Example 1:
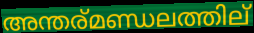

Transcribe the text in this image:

അന്തര്മണ്ഡലത്തില്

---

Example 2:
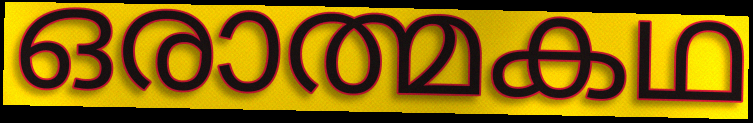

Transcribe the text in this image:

ഒരാത്മകഥ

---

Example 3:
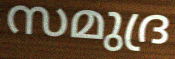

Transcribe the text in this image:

സമുദ്ര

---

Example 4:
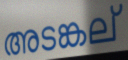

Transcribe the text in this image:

അടങ്കല്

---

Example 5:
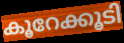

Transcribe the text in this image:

കൂറേക്കൂടി